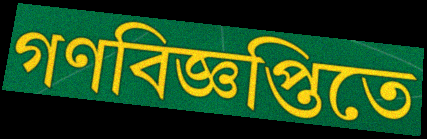
গণবিজ্ঞপ্তিতে